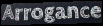
Arrogance